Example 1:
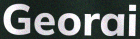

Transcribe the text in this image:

Georai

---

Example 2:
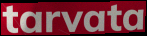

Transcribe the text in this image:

tarvata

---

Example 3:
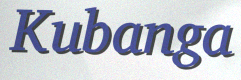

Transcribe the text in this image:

Kubanga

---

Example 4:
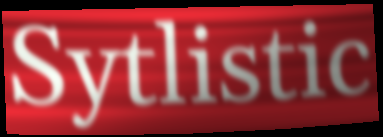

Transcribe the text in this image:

Sytlistic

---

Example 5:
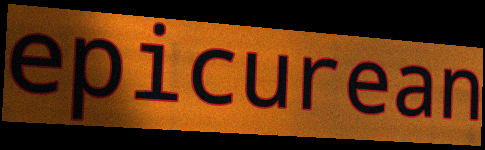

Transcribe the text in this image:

epicurean